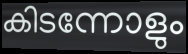
കിടന്നോളും